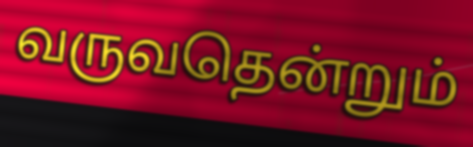
வருவதென்றும்